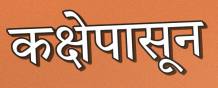
कक्षेपासून